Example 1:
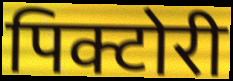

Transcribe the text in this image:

पिक्टोरी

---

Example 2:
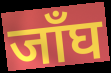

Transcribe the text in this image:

जाँघ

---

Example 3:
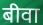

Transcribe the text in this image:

बीवा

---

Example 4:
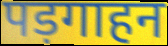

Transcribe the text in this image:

पड़गाहन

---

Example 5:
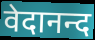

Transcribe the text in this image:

वेदानन्द